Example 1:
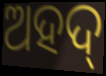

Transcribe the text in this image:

ଅହଦ୍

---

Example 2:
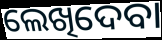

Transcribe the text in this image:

ଲେଖିଦେବା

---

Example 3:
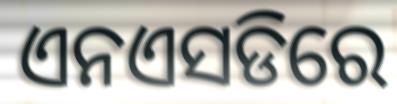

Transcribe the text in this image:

ଏନଏସଡିରେ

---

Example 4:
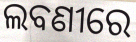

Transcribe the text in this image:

ଲବଣୀରେ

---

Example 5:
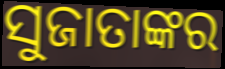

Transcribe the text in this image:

ସୁଜାତାଙ୍କର